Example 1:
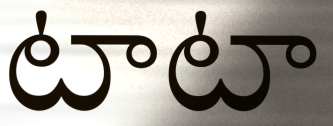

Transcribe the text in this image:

టాటా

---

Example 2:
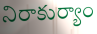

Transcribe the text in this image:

నిరాకుర్యాం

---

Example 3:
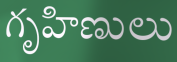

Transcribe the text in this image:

గృహిణులు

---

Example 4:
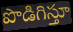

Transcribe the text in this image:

పొడిగిస్తూ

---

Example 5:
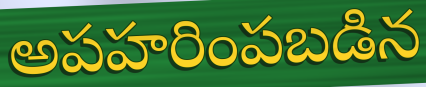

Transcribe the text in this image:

అపహరింపబడిన